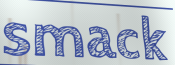
smack